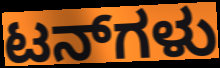
ಟನ್‌ಗಳು